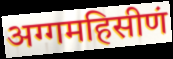
अग्गमहिसीणं